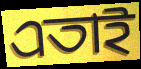
এতাই